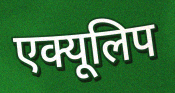
एक्यूलिप